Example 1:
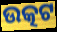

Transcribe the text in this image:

ଉତ୍କଟ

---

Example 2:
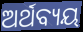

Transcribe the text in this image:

ଅର୍ଥବ୍ୟୟ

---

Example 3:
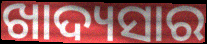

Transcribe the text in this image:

ଖାଦ୍ୟସାର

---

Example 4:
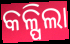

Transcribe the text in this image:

କଳ୍ପିଲା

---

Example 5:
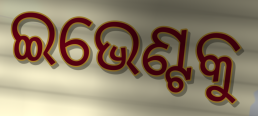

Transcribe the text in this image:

ଇଭେଣ୍ଟକୁ